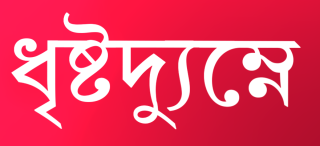
ধৃষ্টদ্যুম্নে